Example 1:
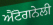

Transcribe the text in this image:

ਐਂਟੋਗਨੇਲੀ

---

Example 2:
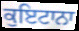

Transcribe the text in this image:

ਕੁਇਟਾਨਾ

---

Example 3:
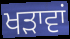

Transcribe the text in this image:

ਖੜਾਵਾਂ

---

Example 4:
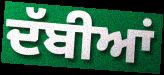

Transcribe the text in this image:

ਦੱਬੀਆਂ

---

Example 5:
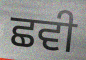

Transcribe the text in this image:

ਛਵੀ